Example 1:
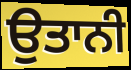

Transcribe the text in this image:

ਉਤਾਨੀ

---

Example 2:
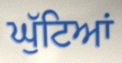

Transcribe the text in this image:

ਘੁੱਟਿਆਂ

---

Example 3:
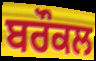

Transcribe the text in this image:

ਬਰੌਕਲ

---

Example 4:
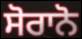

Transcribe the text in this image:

ਸੋਰਾਨੋ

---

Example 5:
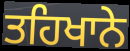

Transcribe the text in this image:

ਤਹਿਖਾਨੇ